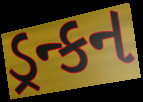
ડ્રન્કન